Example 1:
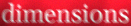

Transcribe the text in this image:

dimensions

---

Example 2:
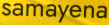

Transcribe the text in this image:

samayena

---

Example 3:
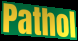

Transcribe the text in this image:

Pathol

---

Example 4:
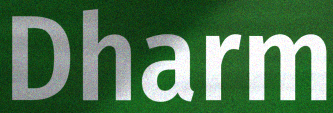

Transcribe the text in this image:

Dharm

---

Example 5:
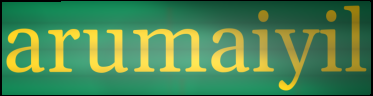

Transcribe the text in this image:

arumaiyil